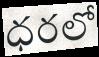
ధరలో